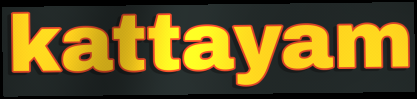
kattayam